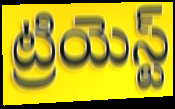
ట్రియెస్ట్